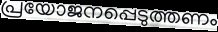
പ്രയോജനപ്പെടുത്തണം